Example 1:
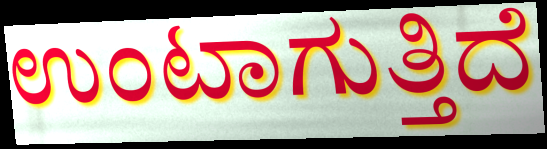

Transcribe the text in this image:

ಉಂಟಾಗುತ್ತಿದೆ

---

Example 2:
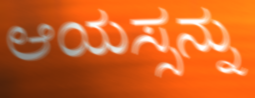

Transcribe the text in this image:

ಆಯಸ್ಸನ್ನು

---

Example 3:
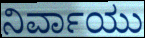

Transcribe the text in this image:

ನಿರ್ವಾಯು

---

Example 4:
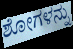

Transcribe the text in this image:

ಶೋಗಳನ್ನು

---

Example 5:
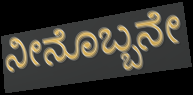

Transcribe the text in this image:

ನೀನೊಬ್ಬನೇ